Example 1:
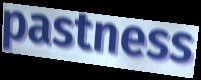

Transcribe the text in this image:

pastness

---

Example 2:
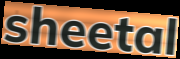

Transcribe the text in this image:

sheetal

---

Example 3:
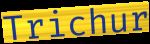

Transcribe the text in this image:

Trichur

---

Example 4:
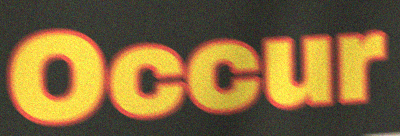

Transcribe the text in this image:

Occur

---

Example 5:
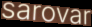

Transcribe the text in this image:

sarovar